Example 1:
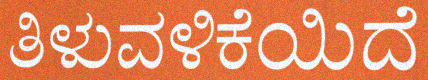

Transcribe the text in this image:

ತಿಳುವಳಿಕೆಯಿದೆ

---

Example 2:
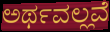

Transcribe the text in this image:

ಅರ್ಥವಲ್ಲವೆ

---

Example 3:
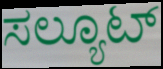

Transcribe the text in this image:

ಸಲ್ಯೂಟ್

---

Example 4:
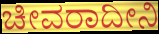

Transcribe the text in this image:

ಚೀವರಾದೀನಿ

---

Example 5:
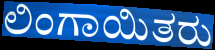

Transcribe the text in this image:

ಲಿಂಗಾಯಿತರು